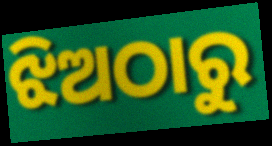
ଝିଅଠାରୁ